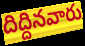
దిద్దినవారు